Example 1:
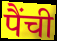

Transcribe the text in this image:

पैंची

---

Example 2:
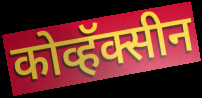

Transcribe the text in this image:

कोव्हॅक्सीन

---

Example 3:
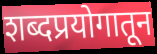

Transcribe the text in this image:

शब्दप्रयोगातून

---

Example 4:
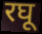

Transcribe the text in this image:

रघू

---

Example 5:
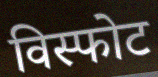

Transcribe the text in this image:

विस्फोट